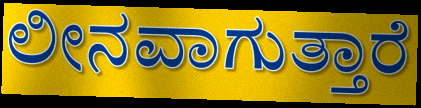
ಲೀನವಾಗುತ್ತಾರೆ